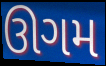
ઊગમ